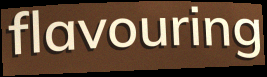
flavouring